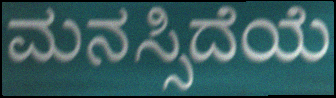
ಮನಸ್ಸಿದೆಯೆ